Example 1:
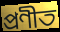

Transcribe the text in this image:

প্রণীত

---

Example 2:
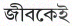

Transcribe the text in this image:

জীবকেই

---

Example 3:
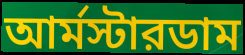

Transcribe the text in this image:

আর্মস্টারডাম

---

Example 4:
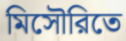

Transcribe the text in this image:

মিসৌরিতে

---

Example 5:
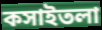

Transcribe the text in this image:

কসাইতলা